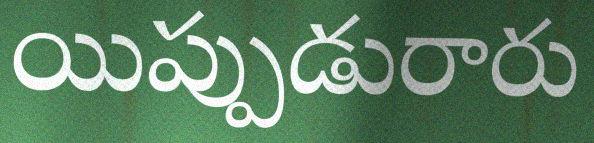
యిప్పుడురారు